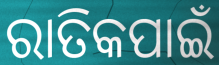
ରାତିକପାଇଁ